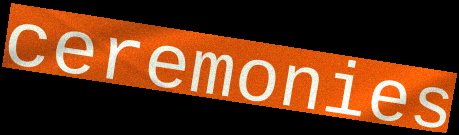
ceremonies